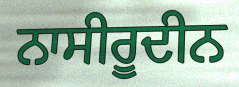
ਨਾਸੀਰੂਦੀਨ